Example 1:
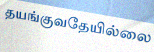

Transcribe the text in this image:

தயங்குவதேயில்லை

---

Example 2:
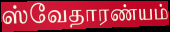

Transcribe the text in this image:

ஸ்வேதாரண்யம்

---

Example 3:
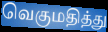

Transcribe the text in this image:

வெகுமதித்து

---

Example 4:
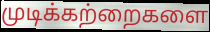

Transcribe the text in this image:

முடிக்கற்றைகளை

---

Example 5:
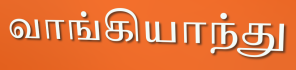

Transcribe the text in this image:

வாங்கியாந்து